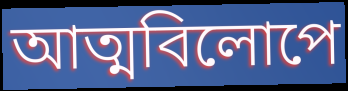
আত্মবিলোপে